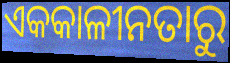
ଏକକାଳୀନତାରୁ